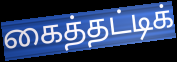
கைத்தட்டிக்